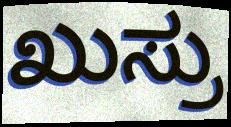
ಖುಸ್ರು